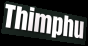
Thimphu